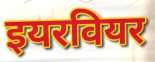
इयरवियर